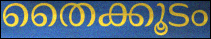
തൈക്കൂടം